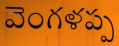
వెంగళప్ప